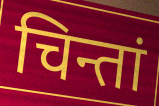
चिन्तां